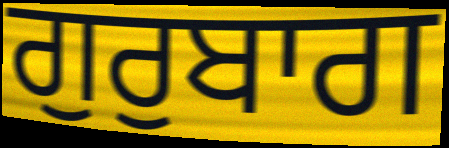
ਗੁਰੁਬਾਗ